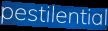
pestilential